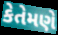
કેતેમણે